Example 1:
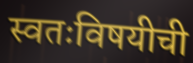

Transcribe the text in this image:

स्वतःविषयीची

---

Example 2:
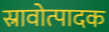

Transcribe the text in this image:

स्रावोत्पादक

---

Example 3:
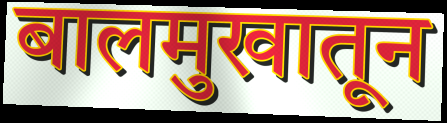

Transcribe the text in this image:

बालमुखातून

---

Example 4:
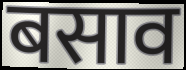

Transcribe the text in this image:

बसाव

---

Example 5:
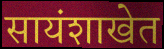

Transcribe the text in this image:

सायंशाखेत